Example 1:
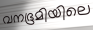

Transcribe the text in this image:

വനഭൂമിയിലെ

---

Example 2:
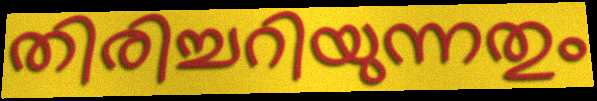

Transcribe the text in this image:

തിരിച്ചറിയുന്നതും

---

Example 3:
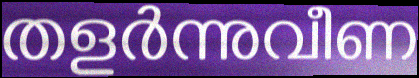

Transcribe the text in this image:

തളർന്നുവീണ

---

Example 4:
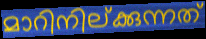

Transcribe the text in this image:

മാറിനില്ക്കുന്നത്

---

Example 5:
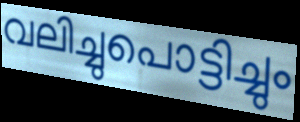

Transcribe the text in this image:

വലിച്ചുപൊട്ടിച്ചും